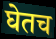
घेतच